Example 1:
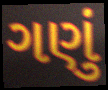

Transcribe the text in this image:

ગણું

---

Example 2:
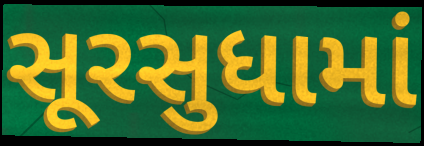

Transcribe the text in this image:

સૂરસુધામાં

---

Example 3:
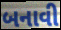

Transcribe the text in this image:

બનાવી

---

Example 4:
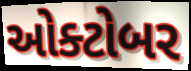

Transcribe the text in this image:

ઓક્ટોબર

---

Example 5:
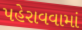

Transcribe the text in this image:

પહેરાવવામાં